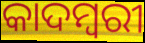
କାଦମ୍ବରୀ